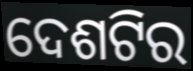
ଦେଶଟିର